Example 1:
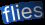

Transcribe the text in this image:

flies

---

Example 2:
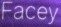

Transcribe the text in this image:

Facey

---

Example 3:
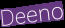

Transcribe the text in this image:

Deeno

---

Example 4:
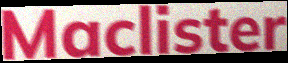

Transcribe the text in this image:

Maclister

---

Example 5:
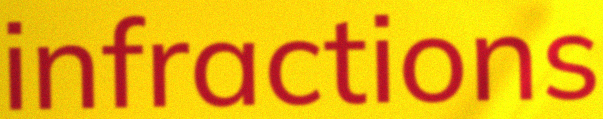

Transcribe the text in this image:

infractions